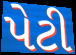
પેટી